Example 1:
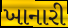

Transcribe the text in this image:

ખાનારી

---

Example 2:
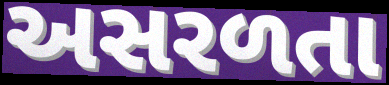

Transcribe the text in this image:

અસરળતા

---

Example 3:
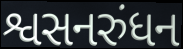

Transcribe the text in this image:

શ્વસનરુંધન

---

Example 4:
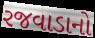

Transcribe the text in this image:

રજવાડાનો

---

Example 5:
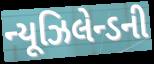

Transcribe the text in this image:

ન્યૂઝિલેન્ડની